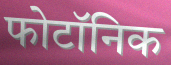
फोटॉनिक